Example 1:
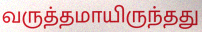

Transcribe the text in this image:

வருத்தமாயிருந்தது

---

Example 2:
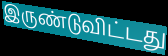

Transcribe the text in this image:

இருண்டுவிட்டது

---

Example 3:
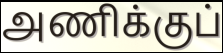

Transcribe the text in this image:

அணிக்குப்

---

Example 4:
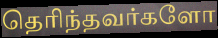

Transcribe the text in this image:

தெரிந்தவர்களோ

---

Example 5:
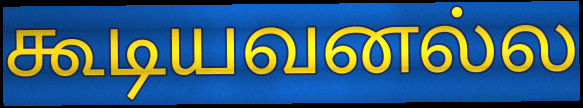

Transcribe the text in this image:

கூடியவனல்ல